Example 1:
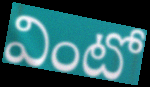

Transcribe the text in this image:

వింటో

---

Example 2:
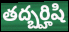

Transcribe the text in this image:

తద్బర్హిషి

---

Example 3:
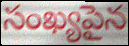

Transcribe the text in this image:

సంఖ్యపైన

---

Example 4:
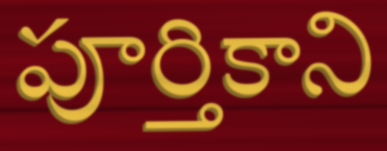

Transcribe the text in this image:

పూర్తికాని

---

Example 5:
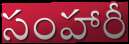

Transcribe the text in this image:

సంహారీ